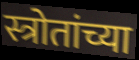
स्त्रोतांच्या